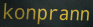
konprann